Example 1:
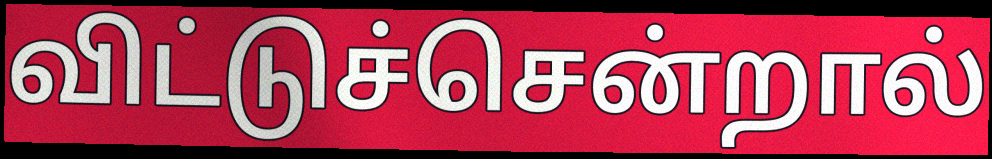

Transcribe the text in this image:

விட்டுச்சென்றால்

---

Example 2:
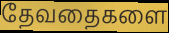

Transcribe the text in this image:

தேவதைகளை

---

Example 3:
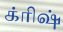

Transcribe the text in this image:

க்ரிஷ்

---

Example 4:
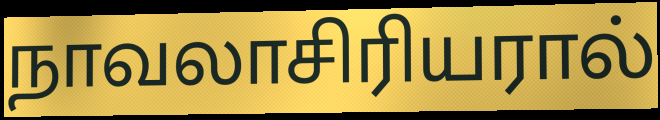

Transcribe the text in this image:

நாவலாசிரியரால்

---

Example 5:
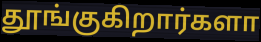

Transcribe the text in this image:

தூங்குகிறார்களா